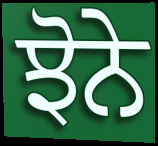
ਝੋਨੇ